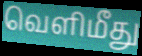
வெளிமீது